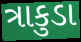
ત્રાકુડા